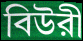
বিউরী